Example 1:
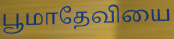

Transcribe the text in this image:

பூமாதேவியை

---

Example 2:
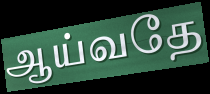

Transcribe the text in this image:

ஆய்வதே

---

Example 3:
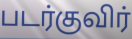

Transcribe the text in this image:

படர்குவிர்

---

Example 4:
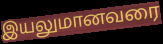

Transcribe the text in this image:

இயலுமானவரை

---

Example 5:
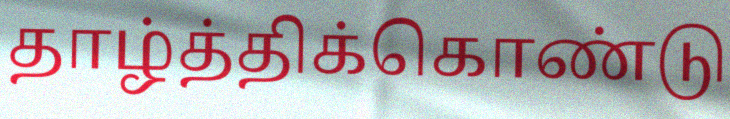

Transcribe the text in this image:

தாழ்த்திக்கொண்டு